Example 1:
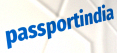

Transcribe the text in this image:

passportindia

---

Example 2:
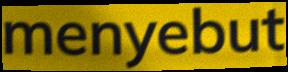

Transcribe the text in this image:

menyebut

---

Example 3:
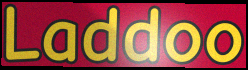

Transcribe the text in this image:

Laddoo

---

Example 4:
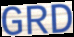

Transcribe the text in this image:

GRD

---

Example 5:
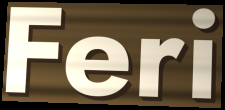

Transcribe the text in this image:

Feri